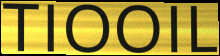
TIOOIL